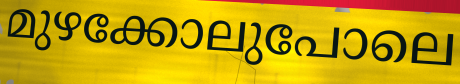
മുഴക്കോലുപോലെ